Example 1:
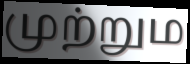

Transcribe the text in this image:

முற்றும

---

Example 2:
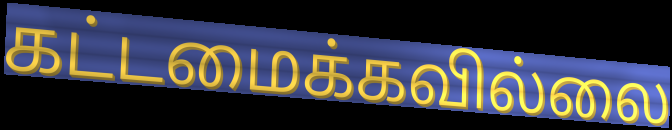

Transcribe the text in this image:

கட்டமைக்கவில்லை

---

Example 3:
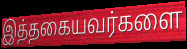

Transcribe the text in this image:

இத்தகையவர்களை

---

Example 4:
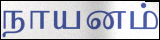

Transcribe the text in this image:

நாயனம்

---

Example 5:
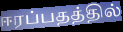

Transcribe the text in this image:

ஈரப்பதத்தில்